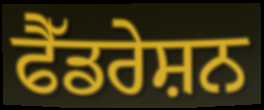
ਫੈੱਡਰੇਸ਼ਨ